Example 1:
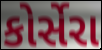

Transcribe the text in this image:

કોર્સેરા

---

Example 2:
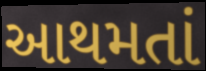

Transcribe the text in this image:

આથમતાં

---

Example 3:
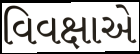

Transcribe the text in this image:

વિવક્ષાએ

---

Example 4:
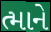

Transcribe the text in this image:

ત્માને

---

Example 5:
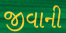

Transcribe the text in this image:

જીવાની